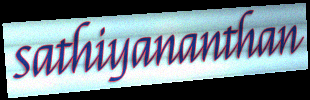
sathiyananthan